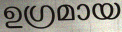
ഉഗ്രമായ